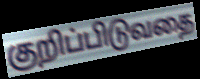
குறிப்பிடுவதை